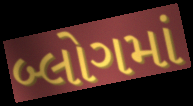
બ્લોગમાં